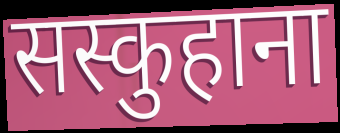
सस्कुहाना